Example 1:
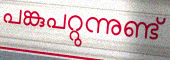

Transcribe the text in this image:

പങ്കുപറ്റുന്നുണ്ട്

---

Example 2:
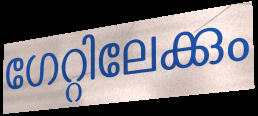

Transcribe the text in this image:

ഗേറ്റിലേക്കും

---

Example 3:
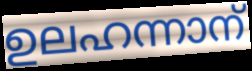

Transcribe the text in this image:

ഉലഹന്നാന്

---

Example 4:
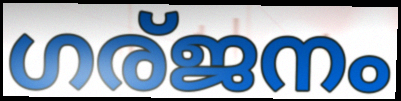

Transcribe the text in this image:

ഗര്ജനം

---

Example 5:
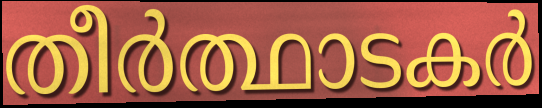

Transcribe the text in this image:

തീർത്ഥാടകർ